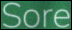
Sore